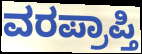
ವರಪ್ರಾಪ್ತಿ